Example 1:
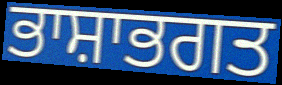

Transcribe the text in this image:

ਭਾਸ਼ਾਭਗਤ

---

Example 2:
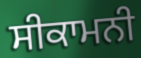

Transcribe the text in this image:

ਸੀਕਾਮਨੀ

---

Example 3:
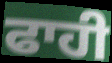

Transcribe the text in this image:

ਫਾਹੀ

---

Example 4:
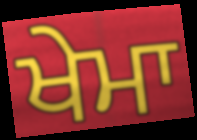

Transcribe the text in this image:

ਖੇਮਾ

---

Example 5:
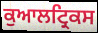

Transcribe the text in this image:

ਕੁਆਲਟ੍ਰਿਕਸ